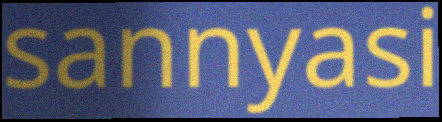
sannyasi